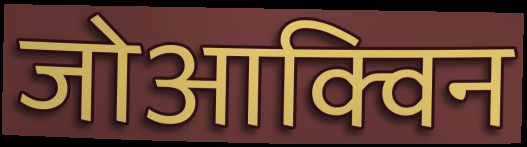
जोआक्विन